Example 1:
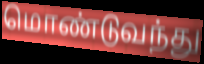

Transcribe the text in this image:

மொண்டுவந்து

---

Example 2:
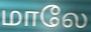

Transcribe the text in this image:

மாலே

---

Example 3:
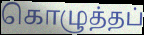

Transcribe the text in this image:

கொழுத்தப்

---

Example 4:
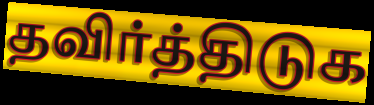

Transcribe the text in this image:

தவிர்த்திடுக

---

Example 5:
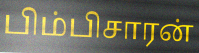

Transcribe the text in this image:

பிம்பிசாரன்